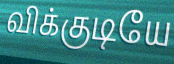
விக்குடியே